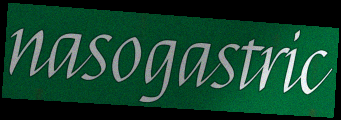
nasogastric